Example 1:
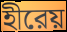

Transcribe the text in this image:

হীরেয়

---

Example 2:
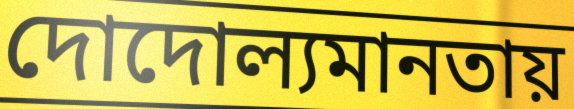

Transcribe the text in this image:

দোদোল্যমানতায়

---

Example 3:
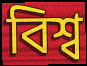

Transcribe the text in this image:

বিশ্ব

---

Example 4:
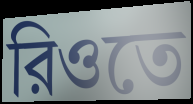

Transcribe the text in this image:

রিওতে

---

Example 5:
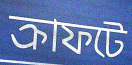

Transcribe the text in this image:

ক্রাফটে